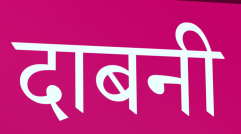
दाबनी